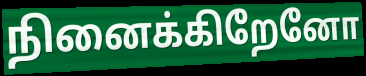
நினைக்கிறேனோ